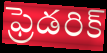
ఫ్రెడరిక్